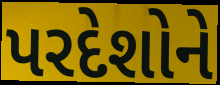
પરદેશોને